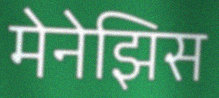
मेनेझिस